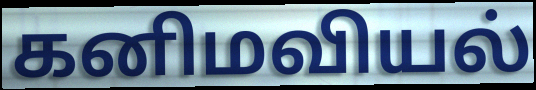
கனிமவியல்